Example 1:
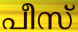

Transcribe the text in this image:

പീസ്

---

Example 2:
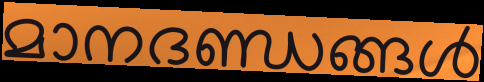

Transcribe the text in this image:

മാനദണ്ഡങ്ങൾ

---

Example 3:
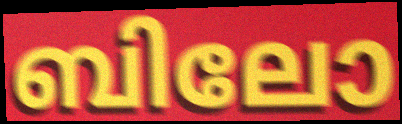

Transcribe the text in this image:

ബിലോ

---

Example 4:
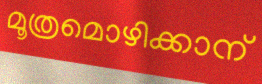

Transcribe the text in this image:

മൂത്രമൊഴിക്കാന്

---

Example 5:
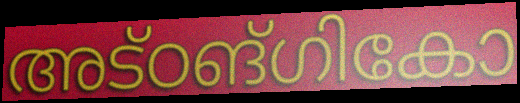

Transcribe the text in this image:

അട്ഠങ്ഗികോ